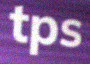
tps